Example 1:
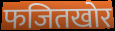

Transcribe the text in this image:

फजितखोर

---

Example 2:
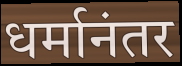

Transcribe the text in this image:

धर्मानंतर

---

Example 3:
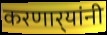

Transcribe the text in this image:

करणार्‍यांनी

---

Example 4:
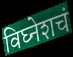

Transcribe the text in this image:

विघ्नेशचं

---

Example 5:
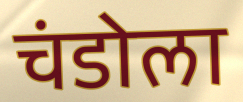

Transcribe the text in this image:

चंडोला